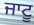
ਜਾਟੂ